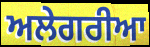
ਅਲੇਗਰੀਆ